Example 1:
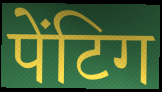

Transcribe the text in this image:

पेंटिग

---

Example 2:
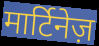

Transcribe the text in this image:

मार्टिनेज़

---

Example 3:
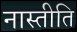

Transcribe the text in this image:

नास्तीति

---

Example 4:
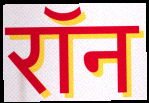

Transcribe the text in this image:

रॉन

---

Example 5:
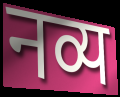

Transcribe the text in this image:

नव्य